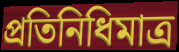
প্রতিনিধিমাত্র